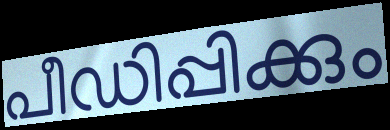
പീഡിപ്പിക്കും